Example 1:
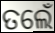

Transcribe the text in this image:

ତଲେଁ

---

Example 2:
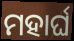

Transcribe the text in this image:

ମହାର୍ଘ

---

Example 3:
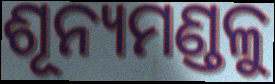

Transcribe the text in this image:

ଶୂନ୍ୟମଣ୍ଡଳୁ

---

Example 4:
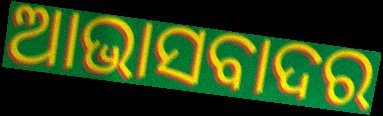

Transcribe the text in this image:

ଆଭାସବାଦର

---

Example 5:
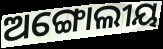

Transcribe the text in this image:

ଅଙ୍ଗୋଲୀୟ